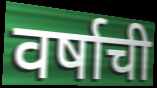
वर्षाची